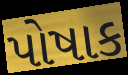
પોષાક